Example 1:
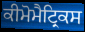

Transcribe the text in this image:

ਕੀਮੋਮੈਟ੍ਰਿਕਸ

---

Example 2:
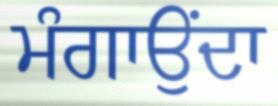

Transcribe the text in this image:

ਮੰਗਾਉਂਦਾ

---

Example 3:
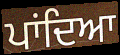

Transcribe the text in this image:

ਪਾਂਦਿਆ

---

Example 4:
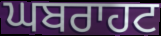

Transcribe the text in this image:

ਘਬਰਾਹਟ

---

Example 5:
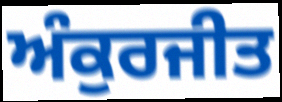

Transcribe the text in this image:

ਅੰਕੁਰਜੀਤ